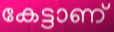
കേട്ടാണ്